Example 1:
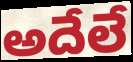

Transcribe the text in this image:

అదేలే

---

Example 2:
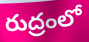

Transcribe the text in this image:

రుద్రంలో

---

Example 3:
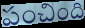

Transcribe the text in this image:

పంచింది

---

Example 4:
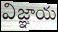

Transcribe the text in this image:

విజ్ఞాయ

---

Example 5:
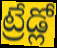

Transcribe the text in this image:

ట్రేడ్లో